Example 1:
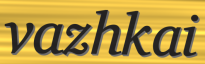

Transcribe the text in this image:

vazhkai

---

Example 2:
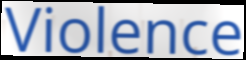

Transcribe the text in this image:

Violence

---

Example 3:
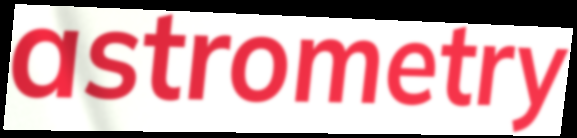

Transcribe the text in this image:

astrometry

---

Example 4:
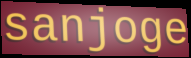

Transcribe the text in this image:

sanjoge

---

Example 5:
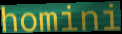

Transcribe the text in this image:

homini